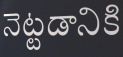
నెట్టడానికి